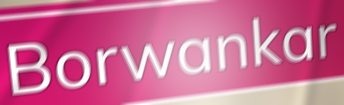
Borwankar